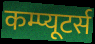
कम्प्यूटर्स